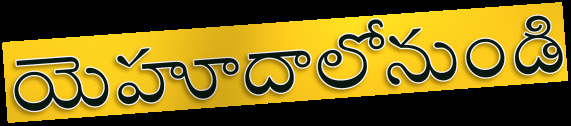
యెహూదాలోనుండి